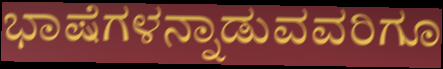
ಭಾಷೆಗಳನ್ನಾಡುವವರಿಗೂ